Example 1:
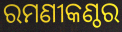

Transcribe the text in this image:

ରମଣୀକଣ୍ଠର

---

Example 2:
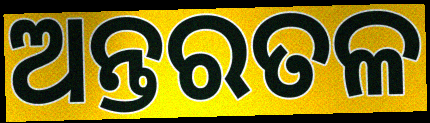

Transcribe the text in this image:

ଅନ୍ତରତଳ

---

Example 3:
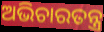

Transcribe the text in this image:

ଅଭିଚାରତନ୍ତ୍ର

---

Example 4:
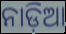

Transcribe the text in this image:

ନାଡ଼ିଆ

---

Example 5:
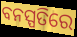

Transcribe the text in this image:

ବନସ୍ପତିରେ